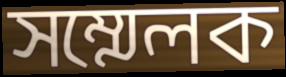
সম্মেলক